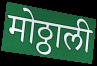
मोठ्ठाली